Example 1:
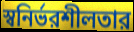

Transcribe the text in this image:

স্বনির্ভরশীলতার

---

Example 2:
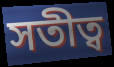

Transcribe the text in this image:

সতীত্ব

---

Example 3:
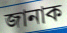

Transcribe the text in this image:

জানাক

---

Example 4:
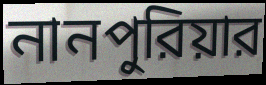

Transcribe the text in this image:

নানপুরিয়ার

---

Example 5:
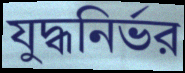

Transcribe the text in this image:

যুদ্ধনির্ভর